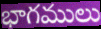
భాగములు